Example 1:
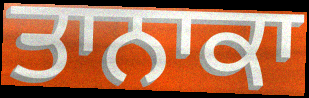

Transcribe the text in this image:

ਤਾਨਾਕਾ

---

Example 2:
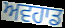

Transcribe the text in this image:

ਅਵਹਾਡ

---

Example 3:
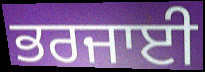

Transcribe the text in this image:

ਭਰਜਾਈ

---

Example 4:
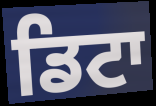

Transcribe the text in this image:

ਡਿਟਾ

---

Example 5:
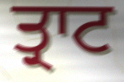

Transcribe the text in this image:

ਤ੍ਰਾਟ